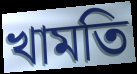
খামতি